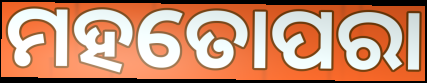
ମହତୋପରା